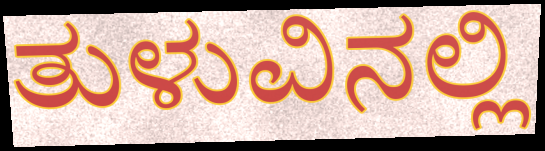
ತುಳುವಿನಲ್ಲಿ